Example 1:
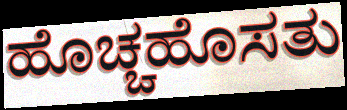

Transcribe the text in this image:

ಹೊಚ್ಚಹೊಸತು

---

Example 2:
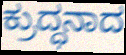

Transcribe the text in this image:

ಕ್ರುದ್ಧನಾದ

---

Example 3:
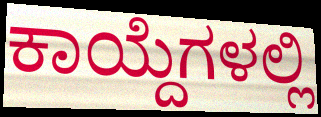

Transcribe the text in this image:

ಕಾಯ್ದೆಗಳಲ್ಲಿ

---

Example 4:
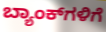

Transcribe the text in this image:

ಬ್ಯಾಂಕ್‌ಗಳಿಗೆ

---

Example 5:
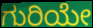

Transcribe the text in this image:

ಗುರಿಯೇ